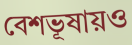
বেশভূষায়ও